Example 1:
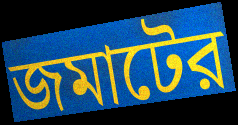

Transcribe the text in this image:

জমাটের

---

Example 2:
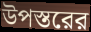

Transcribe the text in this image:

উপস্তরের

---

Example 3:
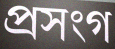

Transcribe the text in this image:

প্রসংগ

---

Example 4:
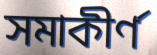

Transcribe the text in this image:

সমাকীর্ণ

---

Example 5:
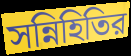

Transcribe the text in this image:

সন্নিহিতির